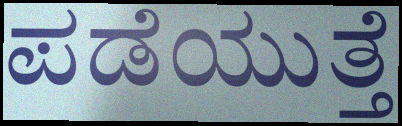
ಪಡೆಯುತ್ತೆ